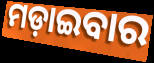
ମଡ଼ାଇବାର